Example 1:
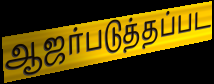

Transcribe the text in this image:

ஆஜர்படுத்தப்பட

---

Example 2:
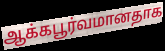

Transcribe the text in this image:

ஆக்கபூர்வமானதாக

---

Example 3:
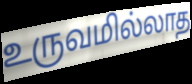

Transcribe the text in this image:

உருவமில்லாத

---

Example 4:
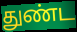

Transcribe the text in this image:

துண்ட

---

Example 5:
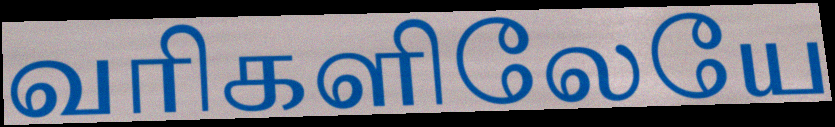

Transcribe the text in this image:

வரிகளிலேயே